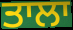
ਤਾਲਾ